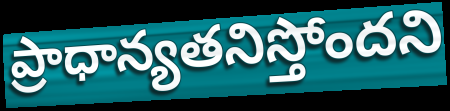
ప్రాధాన్యతనిస్తోందని